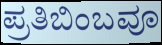
ಪ್ರತಿಬಿಂಬವೂ